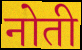
नोती